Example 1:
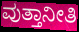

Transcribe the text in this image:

ವುತ್ತಾನೀತಿ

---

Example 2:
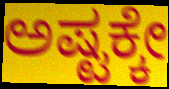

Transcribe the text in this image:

ಅಷ್ಟಕ್ಕೇ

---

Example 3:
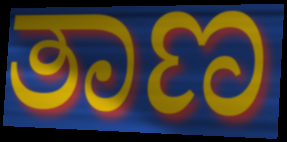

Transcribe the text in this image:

ತಾಣ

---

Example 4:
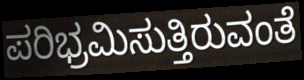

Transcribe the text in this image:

ಪರಿಭ್ರಮಿಸುತ್ತಿರುವಂತೆ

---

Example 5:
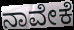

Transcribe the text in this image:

ನಾವೇಕೆ